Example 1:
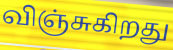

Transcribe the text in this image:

விஞ்சுகிறது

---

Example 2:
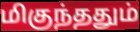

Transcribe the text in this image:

மிகுந்ததும்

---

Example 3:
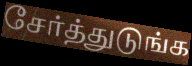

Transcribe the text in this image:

சேர்த்துடுங்க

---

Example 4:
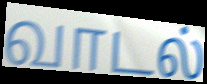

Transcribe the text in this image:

வாடல்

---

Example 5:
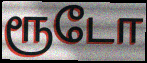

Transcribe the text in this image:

ரூடோ